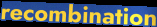
recombination